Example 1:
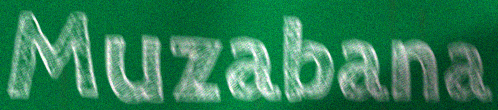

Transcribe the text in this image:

Muzabana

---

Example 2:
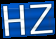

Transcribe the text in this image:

HZ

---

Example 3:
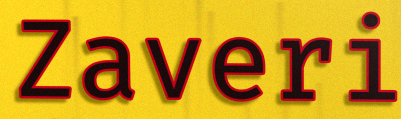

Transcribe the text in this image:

Zaveri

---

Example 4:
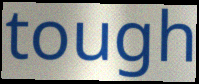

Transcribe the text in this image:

tough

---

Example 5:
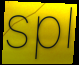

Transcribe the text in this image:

spl